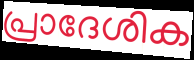
പ്രാദേശിക